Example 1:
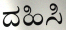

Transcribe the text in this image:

ದಹಿಸಿ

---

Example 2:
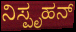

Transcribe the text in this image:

ನಿಸ್ಪೃಹನ್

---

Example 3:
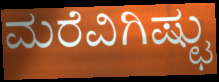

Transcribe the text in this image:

ಮರೆವಿಗಿಷ್ಟು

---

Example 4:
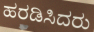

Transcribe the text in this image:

ಹರಡಿಸಿದರು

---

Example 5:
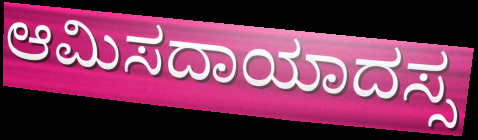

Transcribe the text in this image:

ಆಮಿಸದಾಯಾದಸ್ಸ